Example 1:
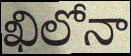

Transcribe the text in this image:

ఖిలోనా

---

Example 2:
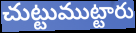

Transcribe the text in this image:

చుట్టుముట్టారు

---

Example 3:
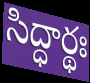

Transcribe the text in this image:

సిద్ధార్థః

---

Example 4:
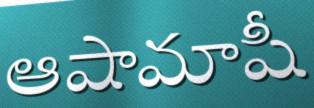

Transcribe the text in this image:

ఆషామాషీ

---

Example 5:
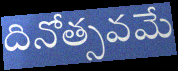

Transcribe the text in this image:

దినోత్సవమే